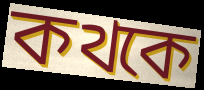
কথকে